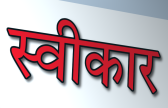
स्‍वीकार